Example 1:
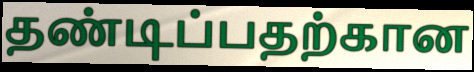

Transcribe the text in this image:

தண்டிப்பதற்கான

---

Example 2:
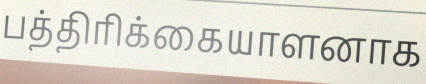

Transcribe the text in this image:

பத்திரிக்கையாளனாக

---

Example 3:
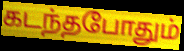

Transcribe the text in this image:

கடந்தபோதும்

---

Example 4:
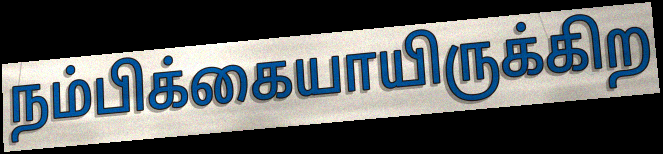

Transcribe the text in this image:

நம்பிக்கையாயிருக்கிற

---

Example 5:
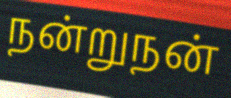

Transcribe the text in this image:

நன்றுநன்